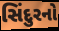
સિંદુરનો